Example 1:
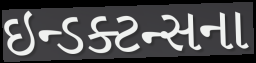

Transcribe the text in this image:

ઇન્ડક્ટન્સના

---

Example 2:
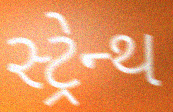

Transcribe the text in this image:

સ્ટ્રેન્થ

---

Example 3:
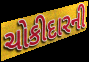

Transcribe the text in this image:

ચોકીદારની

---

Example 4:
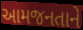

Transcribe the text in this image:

આમજનતાને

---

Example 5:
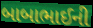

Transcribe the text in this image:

બાબાભાઈની